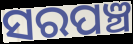
ସରପଞ୍ଚ